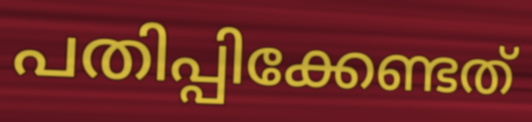
പതിപ്പിക്കേണ്ടത്